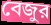
বেজুর